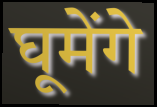
घूमेंगे